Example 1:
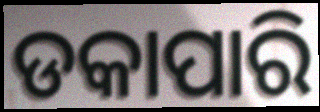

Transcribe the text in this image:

ଡକାପାରି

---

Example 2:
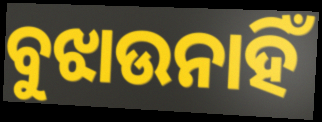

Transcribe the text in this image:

ବୁଝାଉନାହିଁ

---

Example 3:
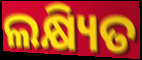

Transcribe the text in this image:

ଲକ୍ଷ୍ୟିତ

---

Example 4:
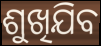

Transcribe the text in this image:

ଶୁଖିଯିବ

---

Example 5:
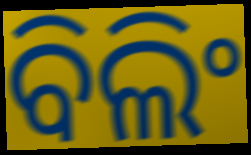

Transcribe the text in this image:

ବିଲିଂ